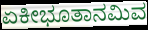
ಏಕೀಭೂತಾನಮಿವ